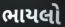
ભાયલો